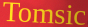
Tomsic